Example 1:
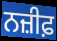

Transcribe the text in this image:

ਨਜ਼ੀਫ਼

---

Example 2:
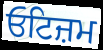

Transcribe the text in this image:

ਓਟਿਜ਼ਮ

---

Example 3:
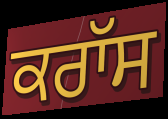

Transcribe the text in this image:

ਕਰਾੱਸ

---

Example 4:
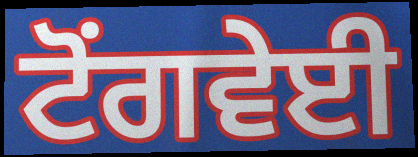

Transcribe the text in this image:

ਟੋਂਗਵੇਈ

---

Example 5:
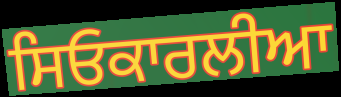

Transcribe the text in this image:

ਸਿਓਕਾਰਲੀਆ